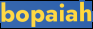
bopaiah